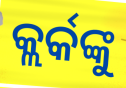
କ୍ଲର୍କଙ୍କୁ